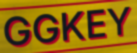
GGKEY